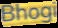
Bhogi